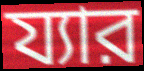
য্যার